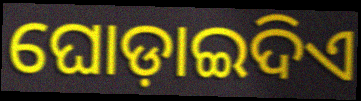
ଘୋଡ଼ାଇଦିଏ